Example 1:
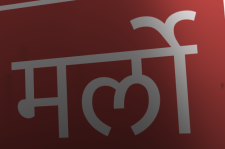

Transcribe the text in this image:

मर्लो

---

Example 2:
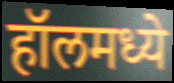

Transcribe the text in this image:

हॉलमध्ये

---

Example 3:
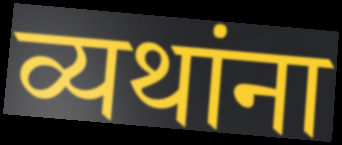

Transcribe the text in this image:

व्यथांना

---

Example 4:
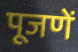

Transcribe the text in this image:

पूजणें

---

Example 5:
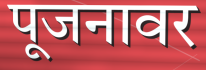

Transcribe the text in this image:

पूजनावर